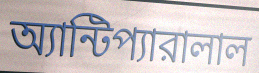
অ্যান্টিপ্যারালাল